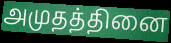
அமுதத்தினை